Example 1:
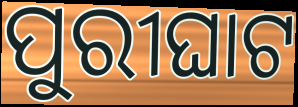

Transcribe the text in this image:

ପୁରୀଘାଟ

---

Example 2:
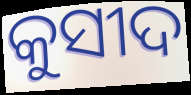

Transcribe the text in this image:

କୁସୀଦ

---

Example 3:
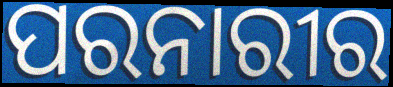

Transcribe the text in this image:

ପରନାରୀର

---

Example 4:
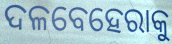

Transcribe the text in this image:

ଦଳବେହେରାକୁ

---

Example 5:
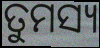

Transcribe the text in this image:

ତୁମସ୍ୟ